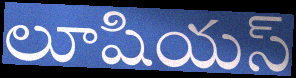
లూషియస్